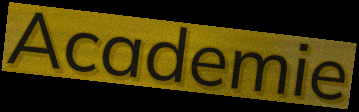
Academie